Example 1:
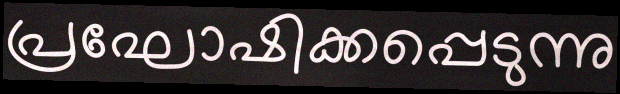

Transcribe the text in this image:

പ്രഘോഷിക്കപ്പെടുന്നു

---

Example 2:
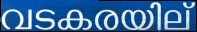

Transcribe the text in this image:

വടകരയില്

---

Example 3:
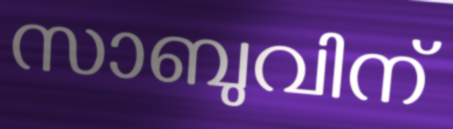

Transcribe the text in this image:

സാബുവിന്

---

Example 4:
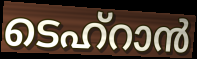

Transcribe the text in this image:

ടെഹ്റാൻ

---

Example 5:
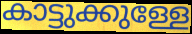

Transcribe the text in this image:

കാട്ടുക്കുള്ളേ